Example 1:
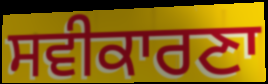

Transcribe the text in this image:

ਸਵੀਕਾਰਣਾ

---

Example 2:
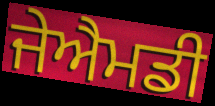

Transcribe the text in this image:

ਜੇਐਮਡੀ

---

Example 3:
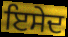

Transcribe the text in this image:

ਇਸੇਦ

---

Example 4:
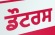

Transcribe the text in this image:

ਡੌਟਰਸ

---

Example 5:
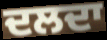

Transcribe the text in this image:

ਦਲਦਾ